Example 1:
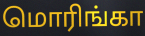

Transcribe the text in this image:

மொரிங்கா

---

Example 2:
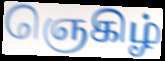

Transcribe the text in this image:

ஞெகிழ்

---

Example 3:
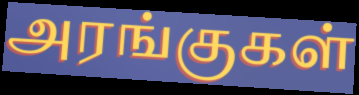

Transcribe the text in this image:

அரங்குகள்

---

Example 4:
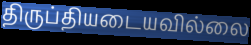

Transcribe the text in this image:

திருப்தியடையவில்லை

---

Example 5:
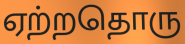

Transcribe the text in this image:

ஏற்றதொரு